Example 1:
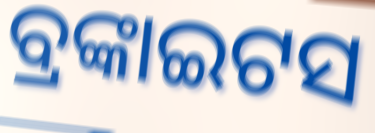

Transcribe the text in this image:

ବ୍ରଙ୍କାଇଟସ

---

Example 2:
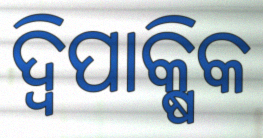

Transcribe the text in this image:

ଦ୍ୱିପାକ୍ଷିକ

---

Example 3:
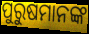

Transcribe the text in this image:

ପୁରୁଷମାନଙ୍କ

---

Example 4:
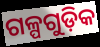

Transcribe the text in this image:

ଗଳ୍ପଗୁଡ଼ିକ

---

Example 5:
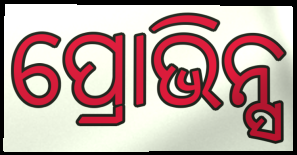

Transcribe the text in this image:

ପ୍ରୋଭିନ୍ସ